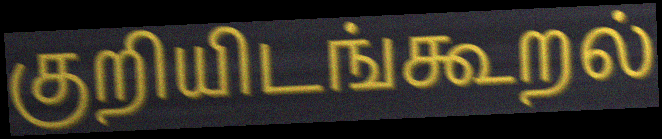
குறியிடங்கூறல்